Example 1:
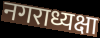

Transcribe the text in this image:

नगराध्यक्षा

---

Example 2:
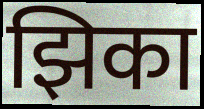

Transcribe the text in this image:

झिका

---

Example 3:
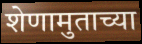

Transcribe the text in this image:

शेणामुताच्या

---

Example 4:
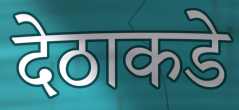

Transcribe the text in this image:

देठाकडे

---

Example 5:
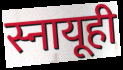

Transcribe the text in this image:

स्नायूही